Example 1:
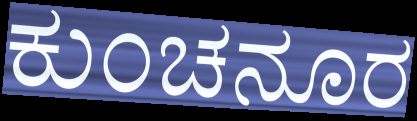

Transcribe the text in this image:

ಕುಂಚನೂರ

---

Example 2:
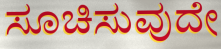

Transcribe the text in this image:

ಸೂಚಿಸುವುದೇ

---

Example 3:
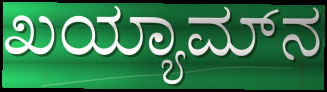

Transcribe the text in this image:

ಖಯ್ಯಾಮ್‌ನ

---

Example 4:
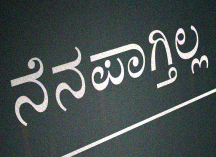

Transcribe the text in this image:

ನೆನಪಾಗ್ತಿಲ್ಲ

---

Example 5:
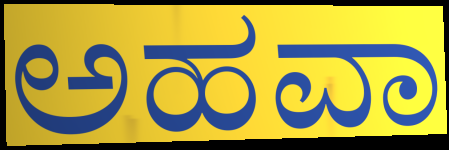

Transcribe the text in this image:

ಅಹವಾ